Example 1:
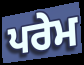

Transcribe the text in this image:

ਪਰੇਮ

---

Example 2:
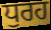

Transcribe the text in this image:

ਧੁਰਹ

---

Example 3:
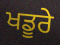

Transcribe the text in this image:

ਖਡੂਰੇ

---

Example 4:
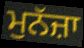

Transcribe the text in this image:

ਮੁਨੱਜ਼ਾ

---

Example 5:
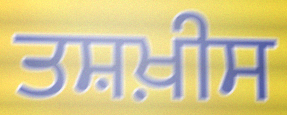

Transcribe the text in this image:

ਤਸ਼ਖ਼ੀਸ